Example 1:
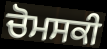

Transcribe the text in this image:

ਚੋਮਸਕੀ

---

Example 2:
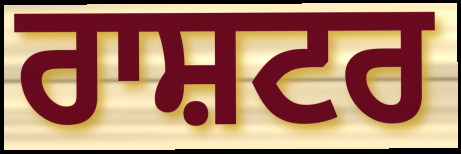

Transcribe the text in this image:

ਰਾਸ਼ਟਰ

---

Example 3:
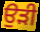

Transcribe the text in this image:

ਉਡ਼ੀ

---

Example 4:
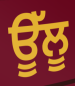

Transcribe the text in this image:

ਊੱਲੂ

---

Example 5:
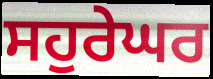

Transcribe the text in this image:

ਸਹੁਰੇਘਰ